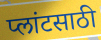
प्लांटसाठी